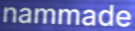
nammade